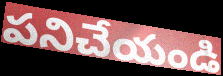
పనిచేయండి